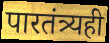
पारतंत्र्यही